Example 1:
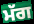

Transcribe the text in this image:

ਮੱਗ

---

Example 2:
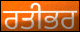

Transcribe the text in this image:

ਰਤੀਭਰ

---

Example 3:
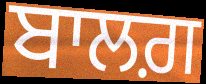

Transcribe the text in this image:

ਬਾਲਗ਼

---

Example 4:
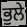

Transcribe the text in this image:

ਭੁਲੇ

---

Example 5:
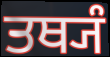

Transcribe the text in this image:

ਤਥ੍ਯੰ